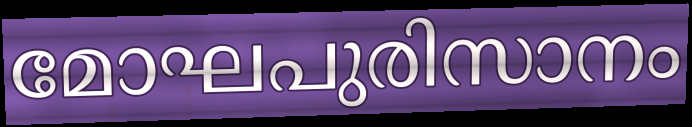
മോഘപുരിസാനം